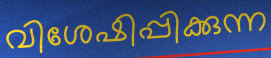
വിശേഷിപ്പിക്കുന്ന